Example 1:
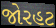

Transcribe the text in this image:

જોરહટ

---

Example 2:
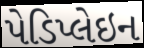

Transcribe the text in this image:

પેડિપ્લેઇન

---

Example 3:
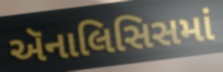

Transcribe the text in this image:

ઍનાલિસિસમાં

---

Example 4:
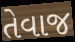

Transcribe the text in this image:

તેવાજ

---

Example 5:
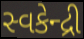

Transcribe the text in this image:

સ્વકેન્દ્રી